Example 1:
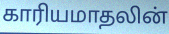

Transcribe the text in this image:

காரியமாதலின்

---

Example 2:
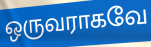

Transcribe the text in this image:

ஒருவராகவே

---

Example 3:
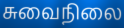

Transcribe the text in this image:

சுவைநிலை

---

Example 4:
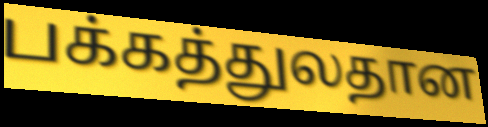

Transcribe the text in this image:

பக்கத்துலதான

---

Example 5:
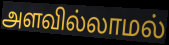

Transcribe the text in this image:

அளவில்லாமல்